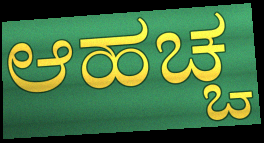
ಆಹಚ್ಚ